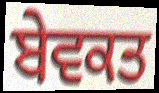
ਬੇਵਕਤ